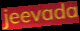
jeevada